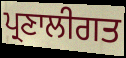
ਪ੍ਰਣਾਲੀਗਤ